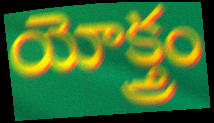
యోక్త్రం